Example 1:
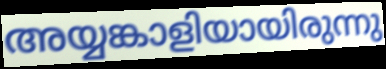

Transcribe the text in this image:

അയ്യങ്കാളിയായിരുന്നു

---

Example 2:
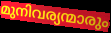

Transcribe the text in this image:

മുനിവര്യന്മാരും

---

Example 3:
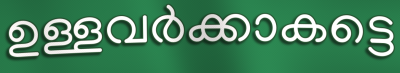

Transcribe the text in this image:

ഉള്ളവർക്കാകട്ടെ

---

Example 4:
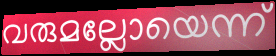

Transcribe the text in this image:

വരുമല്ലോയെന്ന്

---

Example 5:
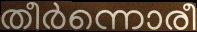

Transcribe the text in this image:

തീർന്നൊരീ